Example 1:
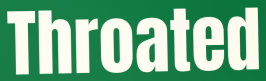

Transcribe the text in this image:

Throated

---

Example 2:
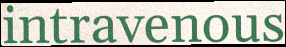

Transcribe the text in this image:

intravenous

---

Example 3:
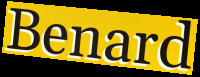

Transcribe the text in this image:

Benard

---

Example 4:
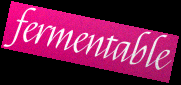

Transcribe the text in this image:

fermentable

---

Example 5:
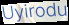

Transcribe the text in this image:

Uyirodu